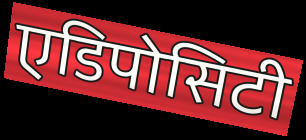
एडिपोसिटी